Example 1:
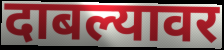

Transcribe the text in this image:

दाबल्यावर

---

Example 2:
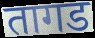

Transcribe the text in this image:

तागड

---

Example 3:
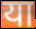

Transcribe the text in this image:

या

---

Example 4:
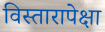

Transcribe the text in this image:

विस्तारापेक्षा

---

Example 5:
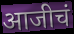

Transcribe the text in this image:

आजीचं